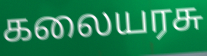
கலையரசு